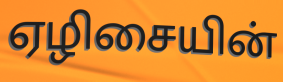
ஏழிசையின்